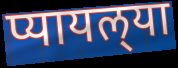
प्यायल्या